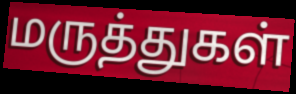
மருத்துகள்